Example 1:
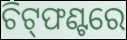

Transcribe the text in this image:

ଚିଟ୍‌ଫଣ୍ଟରେ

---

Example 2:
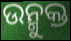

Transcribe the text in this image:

ଉନ୍ମୁକ୍ତ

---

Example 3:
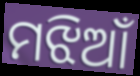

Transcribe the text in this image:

ମଝିଆଁ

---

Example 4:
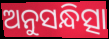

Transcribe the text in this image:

ଅନୁସନ୍ଧିତ୍ସା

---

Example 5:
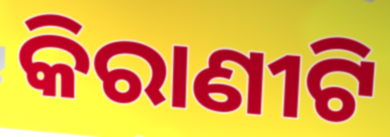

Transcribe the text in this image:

କିରାଣୀଟି